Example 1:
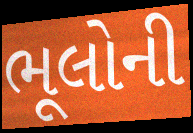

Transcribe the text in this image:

ભૂલોની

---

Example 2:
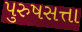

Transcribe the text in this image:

પુરુષસત્તા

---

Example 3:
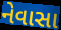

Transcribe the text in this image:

નેવાસા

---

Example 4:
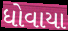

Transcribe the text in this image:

ધોવાયા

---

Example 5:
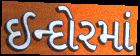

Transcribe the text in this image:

ઈન્દોરમાં